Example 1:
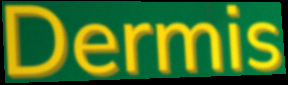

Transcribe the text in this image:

Dermis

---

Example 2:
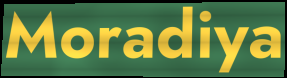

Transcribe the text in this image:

Moradiya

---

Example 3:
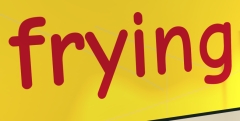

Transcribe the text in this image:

frying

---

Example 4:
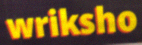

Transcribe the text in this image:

wriksho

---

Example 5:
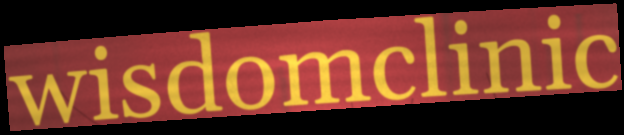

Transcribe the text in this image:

wisdomclinic